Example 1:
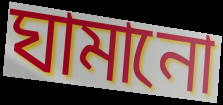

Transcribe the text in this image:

ঘামানো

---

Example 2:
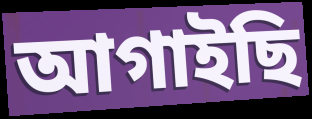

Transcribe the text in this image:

আগাইছি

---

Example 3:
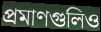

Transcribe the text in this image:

প্রমাণগুলিও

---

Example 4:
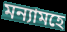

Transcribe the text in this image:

মন্যামহে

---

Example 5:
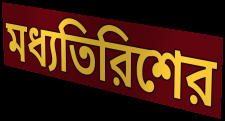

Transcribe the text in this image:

মধ্যতিরিশের